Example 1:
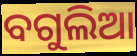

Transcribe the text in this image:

ବଗୁଲିଆ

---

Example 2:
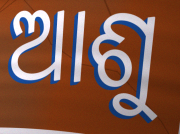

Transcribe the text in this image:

ଆଶୁ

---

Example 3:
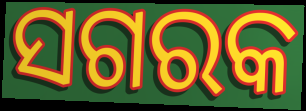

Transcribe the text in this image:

ସଗରକ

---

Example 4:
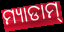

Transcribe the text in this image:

ମ୍ୟାଡାମ୍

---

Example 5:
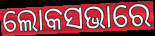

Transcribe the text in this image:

ଲୋକସଭାରେ